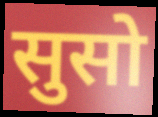
सुसो